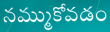
నమ్ముకోవడం